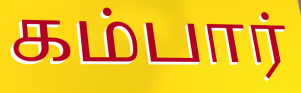
கம்பார்